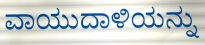
ವಾಯುದಾಳಿಯನ್ನು